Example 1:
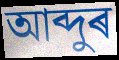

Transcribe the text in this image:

আব্দুৰ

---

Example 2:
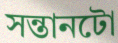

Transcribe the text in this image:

সন্তানটো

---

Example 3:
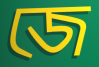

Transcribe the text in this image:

জে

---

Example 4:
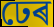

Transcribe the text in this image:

ঢেৰ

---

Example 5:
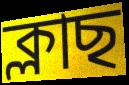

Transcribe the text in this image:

ক্লাছ